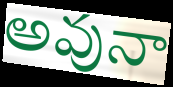
అవునా